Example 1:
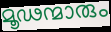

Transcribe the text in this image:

മൂഢന്മാരും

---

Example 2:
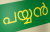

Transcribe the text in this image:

പയ്യൻ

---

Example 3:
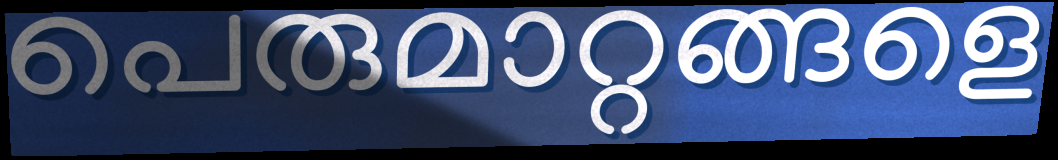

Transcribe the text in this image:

പെരുമാറ്റങ്ങളെ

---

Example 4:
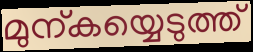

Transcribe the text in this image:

മുന്കയ്യെടുത്ത്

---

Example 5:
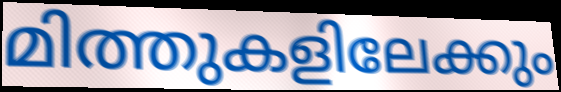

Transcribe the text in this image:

മിത്തുകളിലേക്കും